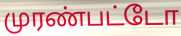
முரண்பட்டோ